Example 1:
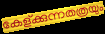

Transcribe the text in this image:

കേള്ക്കുന്നതത്രയും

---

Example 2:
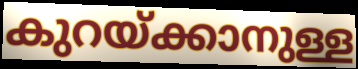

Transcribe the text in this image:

കുറയ്ക്കാനുള്ള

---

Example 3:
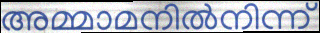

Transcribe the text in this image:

അമ്മാമനിൽനിന്ന്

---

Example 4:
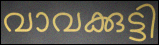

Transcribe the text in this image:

വാവക്കുട്ടി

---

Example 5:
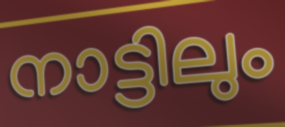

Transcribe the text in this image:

നാട്ടിലും